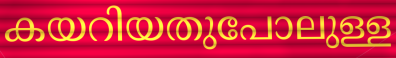
കയറിയതുപോലുള്ള